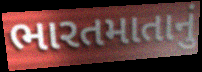
ભારતમાતાનું